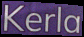
Kerla